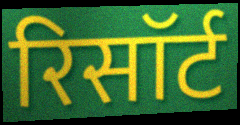
रिसॉर्ट